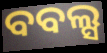
ବବଲ୍ସ